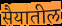
सैयातील